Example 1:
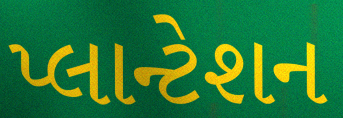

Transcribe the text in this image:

પ્લાન્ટેશન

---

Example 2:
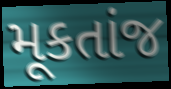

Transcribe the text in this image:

મૂકતાંજ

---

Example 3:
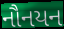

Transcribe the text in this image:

નૌનયન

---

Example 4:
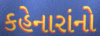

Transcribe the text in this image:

કહેનારાંનો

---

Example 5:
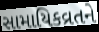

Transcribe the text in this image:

સામાયિકવ્રતને